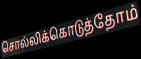
சொல்லிக்கொடுத்தோம்